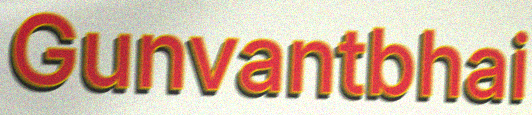
Gunvantbhai